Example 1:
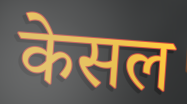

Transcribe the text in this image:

केसल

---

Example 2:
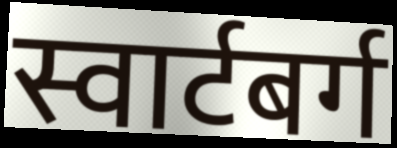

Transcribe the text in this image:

स्वार्टबर्ग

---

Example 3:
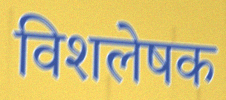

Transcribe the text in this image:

विशलेषक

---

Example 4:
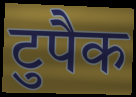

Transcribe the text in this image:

टुपैक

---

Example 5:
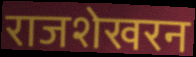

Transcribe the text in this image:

राजशेखरन